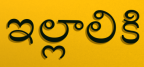
ఇల్లాలికి